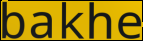
bakhe